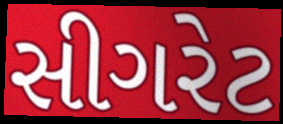
સીગરેટ